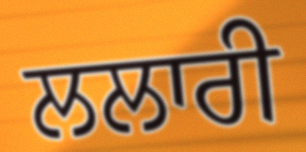
ਲਲਾਰੀ